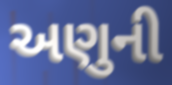
અણુની